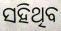
ସହିଥିବ